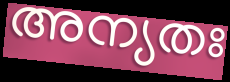
അന്യതഃ